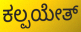
ಕಲ್ಪಯೇತ್